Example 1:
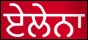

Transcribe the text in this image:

ਏਲੇਨਾ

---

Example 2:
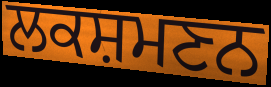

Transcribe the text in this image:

ਲਕਸ਼ਮਣਨ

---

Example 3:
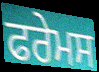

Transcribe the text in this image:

ਫਰੇਮਸ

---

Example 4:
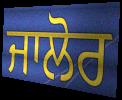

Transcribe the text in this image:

ਜਾਲੋਰ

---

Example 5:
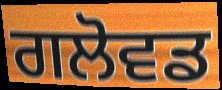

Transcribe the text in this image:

ਗਲੋਵਡ